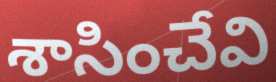
శాసించేవి